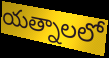
యత్నాలలో